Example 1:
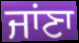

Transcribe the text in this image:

ਜਾਂਣਾ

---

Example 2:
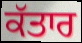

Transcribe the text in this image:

ਕੱਤਾਰ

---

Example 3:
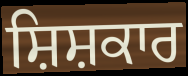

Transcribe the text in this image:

ਸ਼ਿਸ਼ਕਾਰ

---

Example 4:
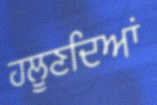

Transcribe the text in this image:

ਹਲੂਣਦਿਆਂ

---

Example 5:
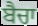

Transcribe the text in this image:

ਬੈਚਾ